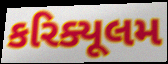
કરિક્યૂલમ